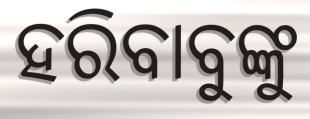
ହରିବାବୁଙ୍କୁ